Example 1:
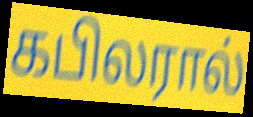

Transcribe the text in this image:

கபிலரால்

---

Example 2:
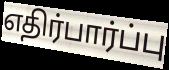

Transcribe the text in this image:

எதிர்பார்ப்பு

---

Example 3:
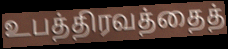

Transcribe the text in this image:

உபத்திரவத்தைத்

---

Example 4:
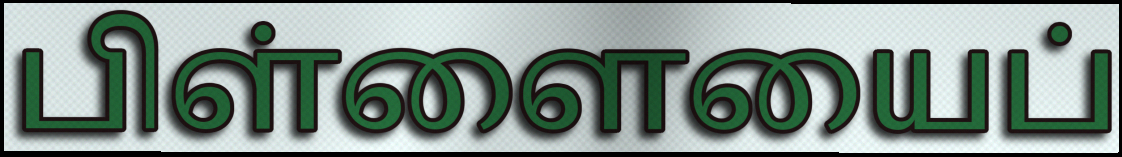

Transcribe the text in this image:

பிள்ளையைப்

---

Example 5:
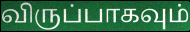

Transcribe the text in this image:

விருப்பாகவும்